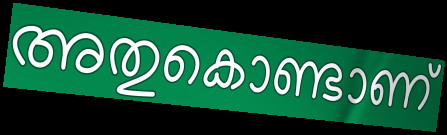
അതുകൊണ്ടാണ്